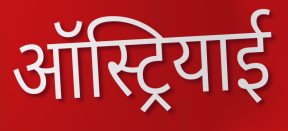
ऑस्ट्रियाई